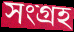
সংগ্ৰহ